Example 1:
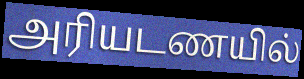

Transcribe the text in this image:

அரியடணயில்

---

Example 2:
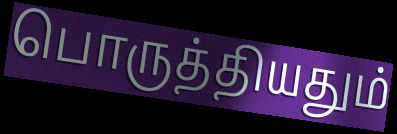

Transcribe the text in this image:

பொருத்தியதும்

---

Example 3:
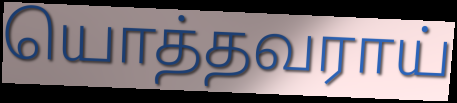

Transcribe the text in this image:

யொத்தவராய்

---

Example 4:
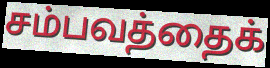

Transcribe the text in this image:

சம்பவத்தைக்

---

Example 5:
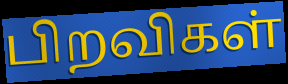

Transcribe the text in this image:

பிறவிகள்